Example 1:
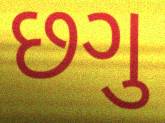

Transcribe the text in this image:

છગુ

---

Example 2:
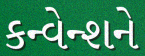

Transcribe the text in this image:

કન્વેન્શને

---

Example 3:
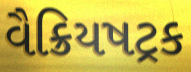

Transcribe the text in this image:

વૈક્રિયષટ્રક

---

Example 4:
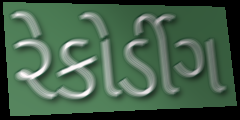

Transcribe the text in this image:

રેકોર્ડીગ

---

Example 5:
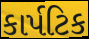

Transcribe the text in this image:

કાર્પટિક